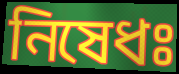
নিষেধঃ